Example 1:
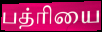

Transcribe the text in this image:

பத்ரியை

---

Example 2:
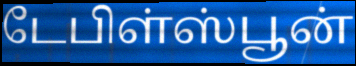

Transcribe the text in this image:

டேபிள்ஸ்பூன்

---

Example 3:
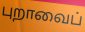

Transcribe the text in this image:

புறாவைப்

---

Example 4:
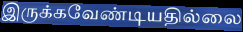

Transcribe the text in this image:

இருக்கவேண்டியதில்லை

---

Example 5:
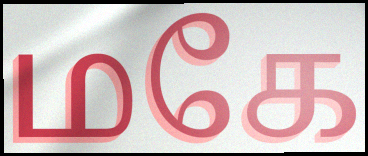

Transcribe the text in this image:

மகே